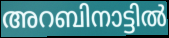
അറബിനാട്ടിൽ